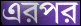
এরপর